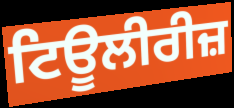
ਟਿਊਲੀਰੀਜ਼